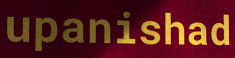
upanishad